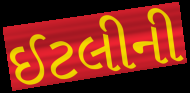
ઈટલીની